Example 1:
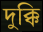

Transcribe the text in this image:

দুক্কি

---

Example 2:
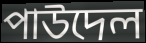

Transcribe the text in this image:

পাউদেল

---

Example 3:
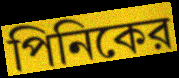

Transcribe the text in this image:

পিনিকের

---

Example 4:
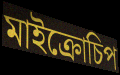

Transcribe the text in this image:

মাইক্রোচিপ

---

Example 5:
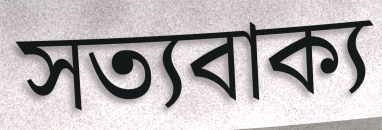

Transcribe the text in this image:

সত্যবাক্য